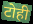
टोही